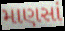
માણસાં